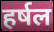
हर्षल